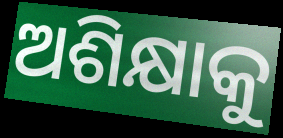
ଅଶିକ୍ଷାକୁ